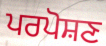
ਪਰਪੋਸ਼ਣ